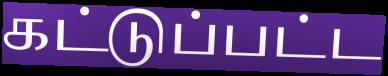
கட்டுப்பட்ட